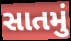
સાતમું